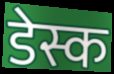
डेस्क